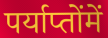
पर्याप्तोंमें